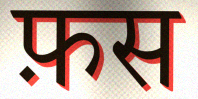
फ़स